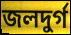
জলদুর্গ